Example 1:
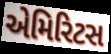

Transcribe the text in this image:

એમિરિટસ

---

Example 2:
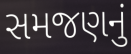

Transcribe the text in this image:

સમજણનું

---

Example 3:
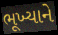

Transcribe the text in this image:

ભૂખ્યાને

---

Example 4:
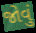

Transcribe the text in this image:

જોવું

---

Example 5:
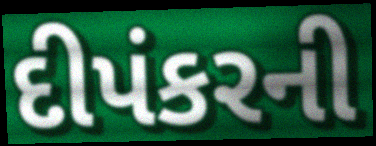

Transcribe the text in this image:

દીપંકરની